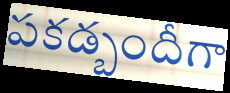
పకడ్బందీగా